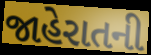
જાહેરાતની